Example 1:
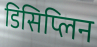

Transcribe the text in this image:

डिसिप्लिन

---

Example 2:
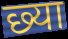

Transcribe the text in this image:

छ्या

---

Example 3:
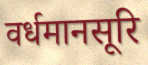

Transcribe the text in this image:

वर्धमानसूरि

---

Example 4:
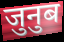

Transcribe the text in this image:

जुनुब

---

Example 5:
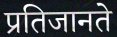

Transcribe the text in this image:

प्रतिजानते